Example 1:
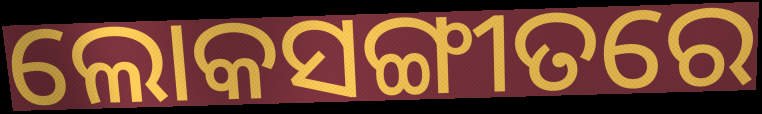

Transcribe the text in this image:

ଲୋକସଙ୍ଗୀତରେ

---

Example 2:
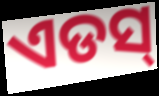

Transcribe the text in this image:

ଏଡସ୍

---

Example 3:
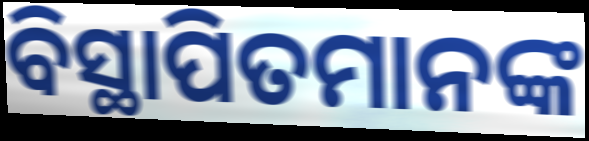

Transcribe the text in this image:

ବିସ୍ଥାପିତମାନଙ୍କ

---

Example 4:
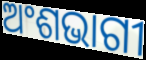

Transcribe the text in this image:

ଅଂଶଭାଗୀ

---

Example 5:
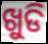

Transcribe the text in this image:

ଖୁଡି